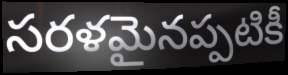
సరళమైనప్పటికీ